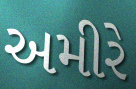
અમીરે